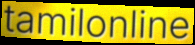
tamilonline